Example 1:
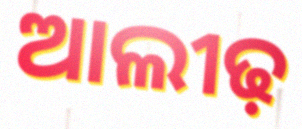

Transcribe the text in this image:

ଆଲୀଢ଼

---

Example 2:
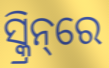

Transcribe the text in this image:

ସ୍କ୍ରିନ୍‌ରେ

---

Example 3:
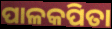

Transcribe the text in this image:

ପାଳକପିତା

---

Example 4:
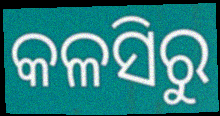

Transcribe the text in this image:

କଳସିରୁ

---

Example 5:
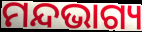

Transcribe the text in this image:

ମନ୍ଦଭାଗ୍ୟ